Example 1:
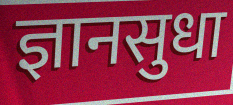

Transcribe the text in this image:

ज्ञानसुधा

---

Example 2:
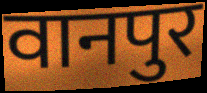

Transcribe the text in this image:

वानपुर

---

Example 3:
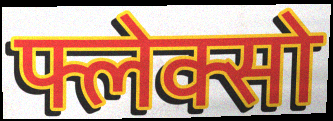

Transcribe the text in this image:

फ्लेक्सो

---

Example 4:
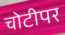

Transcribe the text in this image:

चोटीपर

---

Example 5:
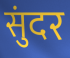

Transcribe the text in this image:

सुंदर